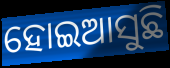
ହୋଇଆସୁଛି